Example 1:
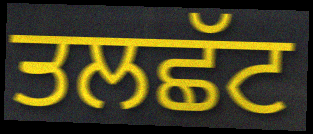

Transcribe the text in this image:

ਤਲਛੱਟ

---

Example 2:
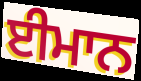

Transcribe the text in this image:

ਈਮਾਨ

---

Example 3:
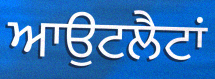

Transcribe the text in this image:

ਆਉਟਲੈਟਾਂ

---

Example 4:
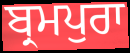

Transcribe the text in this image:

ਬ੍ਰਮਪੁਰਾ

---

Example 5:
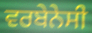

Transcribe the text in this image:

ਵਰਬੇਨੇਸੀ